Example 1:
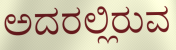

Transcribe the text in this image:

ಅದರಲ್ಲಿರುವ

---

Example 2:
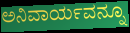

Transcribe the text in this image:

ಅನಿವಾರ್ಯವನ್ನೂ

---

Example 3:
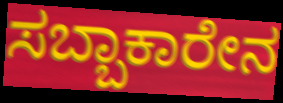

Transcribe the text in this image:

ಸಬ್ಬಾಕಾರೇನ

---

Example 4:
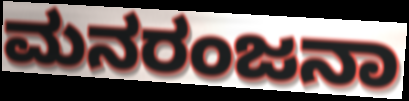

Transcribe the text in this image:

ಮನರಂಜನಾ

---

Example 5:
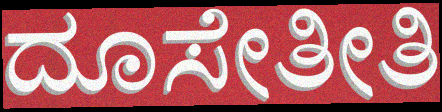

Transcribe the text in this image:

ದೂಸೇತೀತಿ